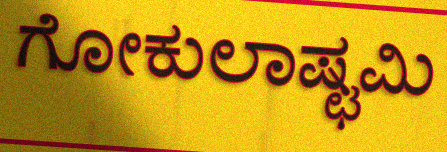
ಗೋಕುಲಾಷ್ಟಮಿ